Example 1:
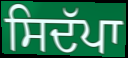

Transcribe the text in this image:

ਸਿਦੱਪਾ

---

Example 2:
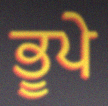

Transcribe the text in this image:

ਭੂਪੇ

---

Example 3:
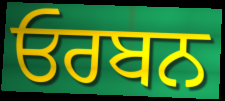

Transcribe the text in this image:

ਓਰਬਨ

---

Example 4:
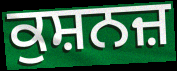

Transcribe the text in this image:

ਕੁਸ਼ਨਜ਼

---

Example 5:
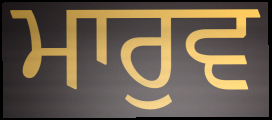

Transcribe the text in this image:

ਮਾਰੁਵ